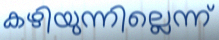
കഴിയുന്നില്ലെന്ന്